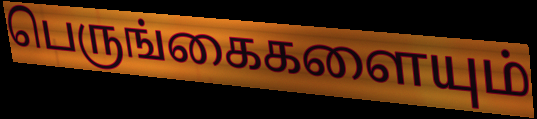
பெருங்கைகளையும்